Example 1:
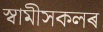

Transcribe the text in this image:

স্বামীসকলৰ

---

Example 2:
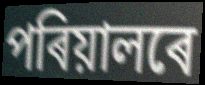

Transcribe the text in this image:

পৰিয়ালৰে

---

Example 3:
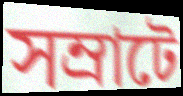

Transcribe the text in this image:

সম্ৰাটে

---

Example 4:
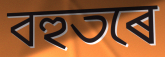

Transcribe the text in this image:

বহুতৰে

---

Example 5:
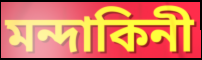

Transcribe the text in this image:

মন্দাকিনী